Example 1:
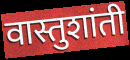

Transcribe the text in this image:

वास्तुशांती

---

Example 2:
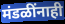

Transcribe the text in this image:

मंडळींनाही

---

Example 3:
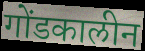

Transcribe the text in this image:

गोंडकालीन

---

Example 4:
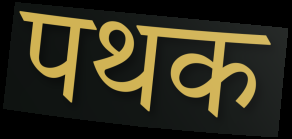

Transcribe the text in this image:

पथक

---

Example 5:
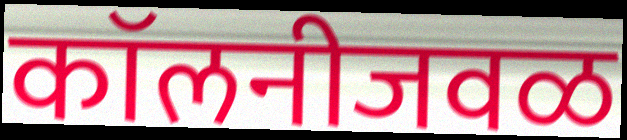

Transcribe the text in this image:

कॉलनीजवळ